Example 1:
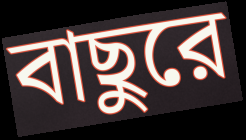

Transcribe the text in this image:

বাছুরে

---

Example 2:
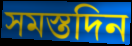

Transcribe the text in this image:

সমস্তদিন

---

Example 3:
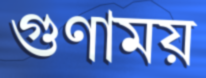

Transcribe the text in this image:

গুণাময়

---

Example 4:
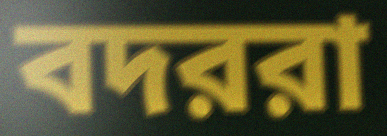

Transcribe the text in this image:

বদররা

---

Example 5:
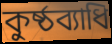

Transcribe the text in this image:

কুষ্ঠব্যাধি